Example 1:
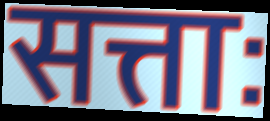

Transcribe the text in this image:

सत्ताः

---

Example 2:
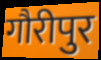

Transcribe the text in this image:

गौरीपुर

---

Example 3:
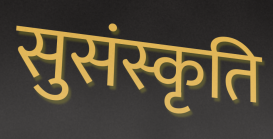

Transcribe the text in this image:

सुसंस्कृति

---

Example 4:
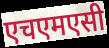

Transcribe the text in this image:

एचएमएसी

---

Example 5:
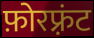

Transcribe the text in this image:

फ़ोरफ़्रंट